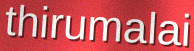
thirumalai